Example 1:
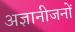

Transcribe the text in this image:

अज्ञानीजनों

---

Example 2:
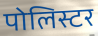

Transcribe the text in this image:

पोलिस्टर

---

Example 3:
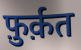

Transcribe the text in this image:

फ़ुर्क़त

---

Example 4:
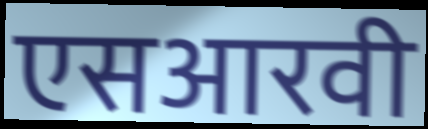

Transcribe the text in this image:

एसआरवी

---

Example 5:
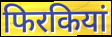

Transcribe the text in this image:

फिरकियां